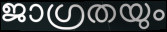
ജാഗ്രതയും